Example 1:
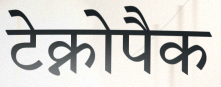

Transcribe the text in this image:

टेक्नोपैक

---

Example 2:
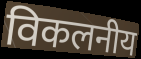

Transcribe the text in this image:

विकलनीय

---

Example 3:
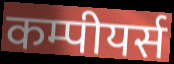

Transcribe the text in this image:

कम्पीयर्स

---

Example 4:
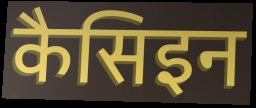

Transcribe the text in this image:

कैसिइन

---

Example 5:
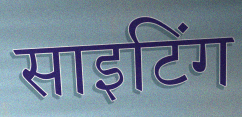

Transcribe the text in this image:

साइटिंग